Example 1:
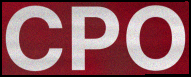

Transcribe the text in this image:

CPO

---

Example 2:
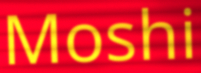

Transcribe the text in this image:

Moshi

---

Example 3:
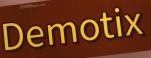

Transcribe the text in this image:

Demotix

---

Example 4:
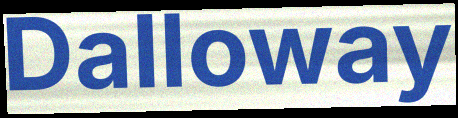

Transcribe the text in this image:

Dalloway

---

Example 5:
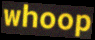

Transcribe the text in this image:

whoop